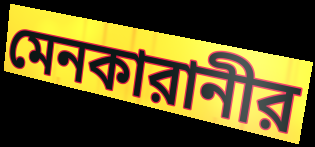
মেনকারানীর